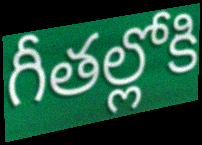
గీతల్లోకి